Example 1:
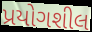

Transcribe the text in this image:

પ્રયોગશીલ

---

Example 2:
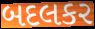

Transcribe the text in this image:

બદલકર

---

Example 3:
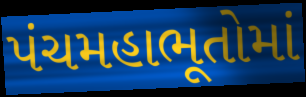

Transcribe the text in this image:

પંચમહાભૂતોમાં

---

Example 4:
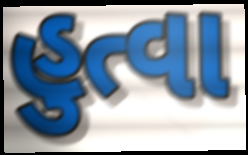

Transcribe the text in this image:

હુત્વા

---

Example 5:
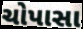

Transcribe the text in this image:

ચોપાસા